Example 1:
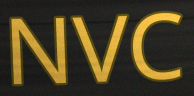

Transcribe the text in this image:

NVC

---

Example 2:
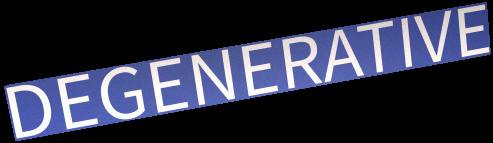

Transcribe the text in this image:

DEGENERATIVE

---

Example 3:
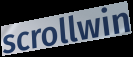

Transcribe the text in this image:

scrollwin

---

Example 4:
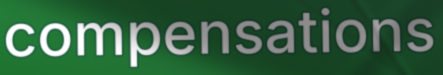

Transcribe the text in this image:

compensations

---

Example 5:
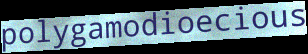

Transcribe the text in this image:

polygamodioecious